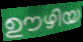
ഊഴിയ